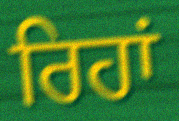
ਰਿਹਾਂ